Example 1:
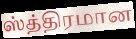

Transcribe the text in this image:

ஸ்த்திரமான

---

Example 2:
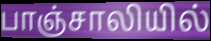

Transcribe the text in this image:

பாஞ்சாலியில்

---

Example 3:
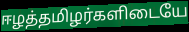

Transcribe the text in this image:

ஈழத்தமிழர்களிடையே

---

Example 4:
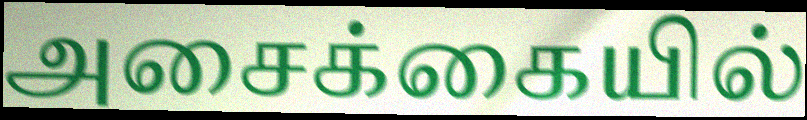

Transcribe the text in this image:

அசைக்கையில்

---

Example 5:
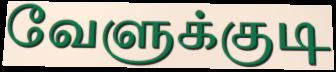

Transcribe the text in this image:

வேளுக்குடி